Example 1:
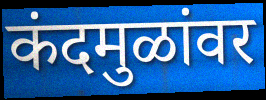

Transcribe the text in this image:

कंदमुळांवर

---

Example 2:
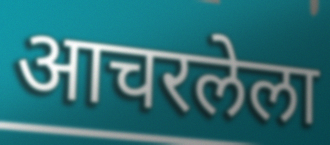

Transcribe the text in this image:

आचरलेला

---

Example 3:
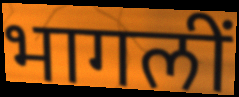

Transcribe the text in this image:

भागलीं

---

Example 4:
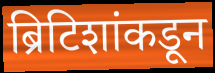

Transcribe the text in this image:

ब्रिटिशांकडून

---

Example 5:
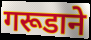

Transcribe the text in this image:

गरूडाने